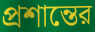
প্রশান্তের